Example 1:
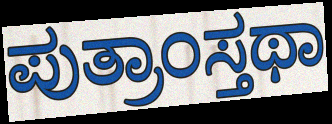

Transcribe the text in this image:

ಪುತ್ರಾಂಸ್ತಥಾ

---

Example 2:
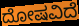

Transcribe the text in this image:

ದೋಷವಿದೆ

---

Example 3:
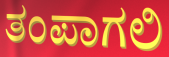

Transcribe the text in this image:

ತಂಪಾಗಲಿ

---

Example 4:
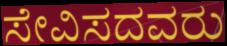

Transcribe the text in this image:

ಸೇವಿಸದವರು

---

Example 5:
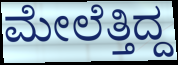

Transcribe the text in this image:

ಮೇಲೆತ್ತಿದ್ದ